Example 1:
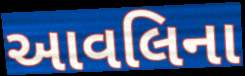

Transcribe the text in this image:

આવલિના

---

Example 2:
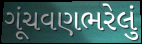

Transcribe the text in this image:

ગૂંચવણભરેલું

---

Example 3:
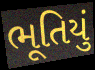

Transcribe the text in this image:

ભૂતિયું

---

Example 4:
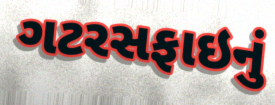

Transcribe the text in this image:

ગટરસફાઇનું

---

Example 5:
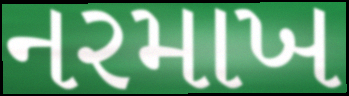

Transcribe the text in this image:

નરમાખ